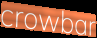
crowbar